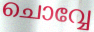
ചൊവ്വേ